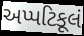
અપ્પટિકૂલં